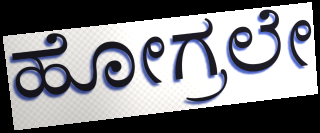
ಹೋಗ್ರಲೇ